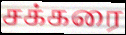
சக்கரை